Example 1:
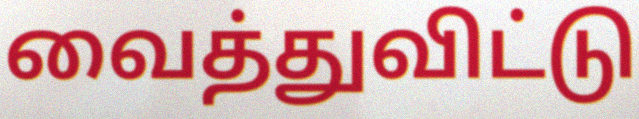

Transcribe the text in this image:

வைத்துவிட்டு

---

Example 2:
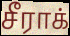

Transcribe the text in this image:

சீராக்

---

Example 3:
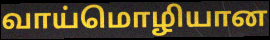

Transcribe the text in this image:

வாய்மொழியான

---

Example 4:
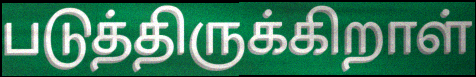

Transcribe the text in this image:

படுத்திருக்கிறாள்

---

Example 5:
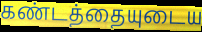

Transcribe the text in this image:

கண்டத்தையுடைய